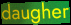
daugher